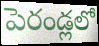
పెరండ్లలో